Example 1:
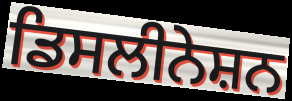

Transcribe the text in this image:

ਡਿਸਲੀਨੇਸ਼ਨ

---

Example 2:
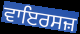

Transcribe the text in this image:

ਵਾਇਰਸਜ਼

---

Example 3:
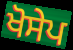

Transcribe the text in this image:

ਖੋਸੇਪ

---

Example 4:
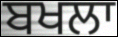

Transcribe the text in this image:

ਬਖਲਾ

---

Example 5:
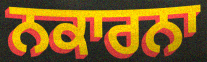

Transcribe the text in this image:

ਨਕਾਰਨਾ